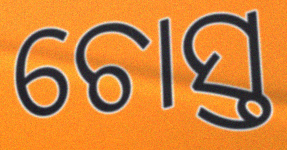
ଚୋସ୍ତ